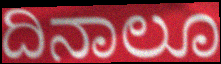
ದಿನಾಲೂ